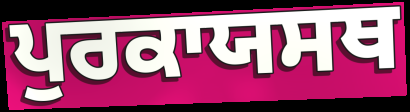
ਪੁਰਕਾਯਸਥ